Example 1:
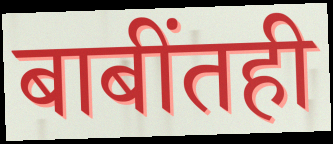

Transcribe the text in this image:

बाबींतही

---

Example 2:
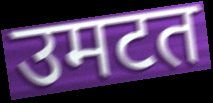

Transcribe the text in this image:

उमटत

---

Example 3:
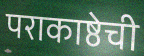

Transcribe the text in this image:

पराकाष्ठेची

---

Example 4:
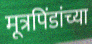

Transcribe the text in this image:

मूत्रपिंडांच्या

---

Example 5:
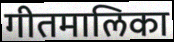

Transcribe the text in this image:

गीतमालिका